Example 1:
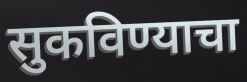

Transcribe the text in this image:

सुकविण्याचा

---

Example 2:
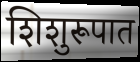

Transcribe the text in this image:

शिशुरूपात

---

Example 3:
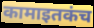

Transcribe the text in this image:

कामाइतकंच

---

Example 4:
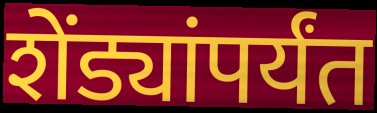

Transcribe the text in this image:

शेंड्यांपर्यंत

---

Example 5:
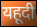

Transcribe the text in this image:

यहूदी